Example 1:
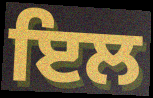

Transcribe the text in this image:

ਇਲ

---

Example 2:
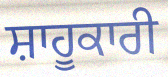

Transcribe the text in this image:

ਸ਼ਾਹੂਕਾਰੀ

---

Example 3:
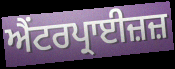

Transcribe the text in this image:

ਐਂਟਰਪ੍ਰਾਈਜ਼ਜ਼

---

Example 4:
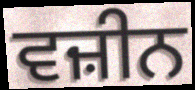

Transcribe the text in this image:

ਵਜ਼ੀਨ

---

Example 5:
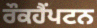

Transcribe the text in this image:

ਰੌਕਹੈਂਪਟਨ